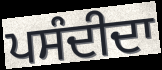
ਪਸੰਦੀਦਾ